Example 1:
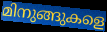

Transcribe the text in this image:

മിനുങ്ങുകളെ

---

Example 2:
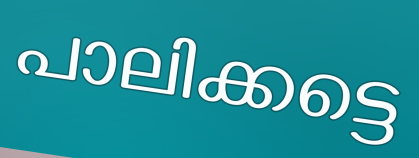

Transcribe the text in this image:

പാലിക്കട്ടെ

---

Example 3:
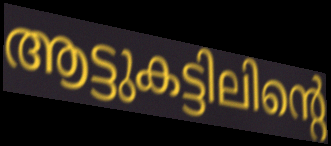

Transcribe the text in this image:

ആട്ടുകട്ടിലിന്റെ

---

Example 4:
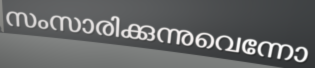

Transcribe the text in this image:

സംസാരിക്കുന്നുവെന്നോ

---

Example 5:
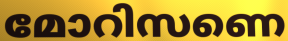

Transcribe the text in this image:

മോറിസണെ